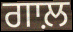
ਗਾਲ਼